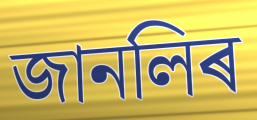
জানলিৰ